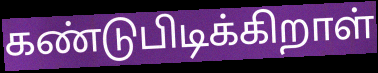
கண்டுபிடிக்கிறாள்